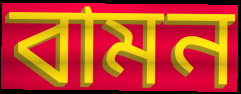
বামন